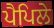
ਪੈਪਿਲੇ